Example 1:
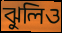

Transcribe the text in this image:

ঝুলিও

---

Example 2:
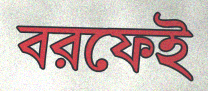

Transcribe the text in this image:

বরফেই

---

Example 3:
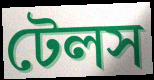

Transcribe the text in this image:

টেলস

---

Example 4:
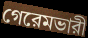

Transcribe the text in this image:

গেরেমভারী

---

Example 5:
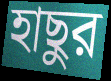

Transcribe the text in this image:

হাছুর